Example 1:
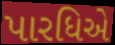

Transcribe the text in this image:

પારધિએ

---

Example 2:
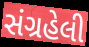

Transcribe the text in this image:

સંગ્રહેલી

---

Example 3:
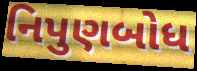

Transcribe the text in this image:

નિપુણબોધ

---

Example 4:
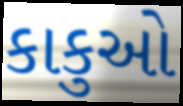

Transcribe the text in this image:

કાકુઓ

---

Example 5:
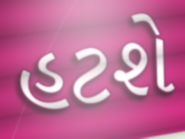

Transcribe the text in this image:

હટશે